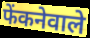
फेंकनेवाले